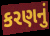
કરણનું